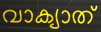
വാക്യാത്